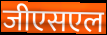
जीएसएल